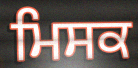
ਮਿਸਕ